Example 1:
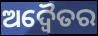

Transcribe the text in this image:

ଅଦ୍ଵୈତର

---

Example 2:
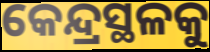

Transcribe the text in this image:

କେନ୍ଦ୍ରସ୍ଥଳକୁ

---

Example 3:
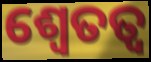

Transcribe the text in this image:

ଶ୍ୱେତତ୍ଵ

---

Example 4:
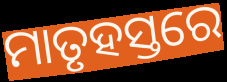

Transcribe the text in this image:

ମାତୃହସ୍ତରେ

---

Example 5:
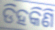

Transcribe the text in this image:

ଡିହକିଣି